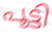
പൂട്ടി